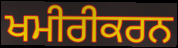
ਖਮੀਰੀਕਰਨ